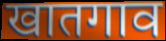
खातगाव